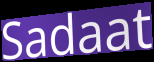
Sadaat